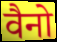
वैनो